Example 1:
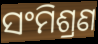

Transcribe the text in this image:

ସଂମିଶ୍ରଣ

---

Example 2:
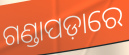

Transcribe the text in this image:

ଗଣ୍ଡାପଡ଼ାରେ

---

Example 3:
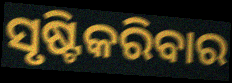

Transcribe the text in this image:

ସୃଷ୍ଟିକରିବାର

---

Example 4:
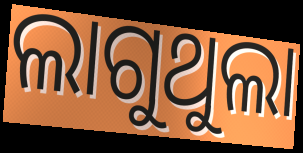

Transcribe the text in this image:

ଲାଗୁଥୁଲା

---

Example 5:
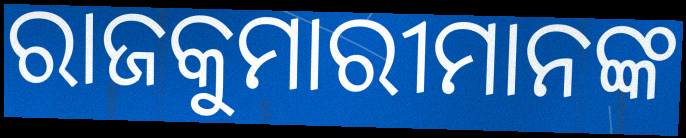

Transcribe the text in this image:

ରାଜକୁମାରୀମାନଙ୍କ